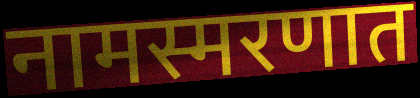
नामस्मरणात